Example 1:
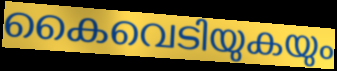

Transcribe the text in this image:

കൈവെടിയുകയും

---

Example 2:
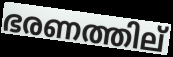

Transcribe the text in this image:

ഭരണത്തില്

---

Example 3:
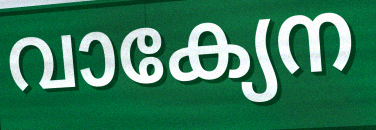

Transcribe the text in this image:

വാക്യേന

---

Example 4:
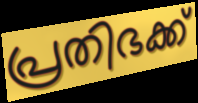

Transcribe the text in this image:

പ്രതിഭക്ക്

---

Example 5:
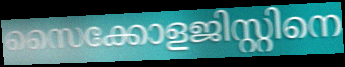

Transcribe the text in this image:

സൈക്കോളജിസ്റ്റിനെ